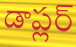
డాప్లర్